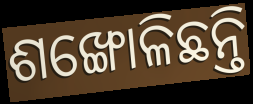
ଶଙ୍ଖୋଳିଛନ୍ତି